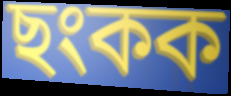
ছংকক